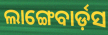
ଲାଙ୍ଗେବାର୍ଡ଼ସ